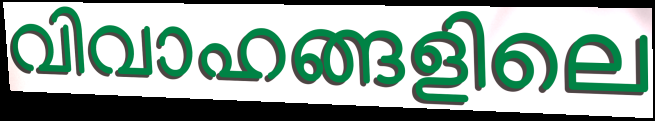
വിവാഹങ്ങളിലെ